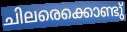
ചിലരെക്കൊണ്ടു്